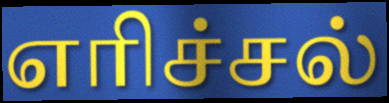
எரிச்சல்